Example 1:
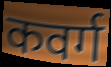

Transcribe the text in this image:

कवर्ग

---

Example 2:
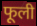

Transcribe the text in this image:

फूली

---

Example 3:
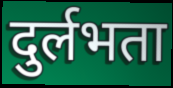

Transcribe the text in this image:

दुर्लभता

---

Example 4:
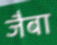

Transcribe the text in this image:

जैबा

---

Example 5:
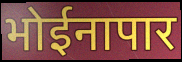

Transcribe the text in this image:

भोईनापार